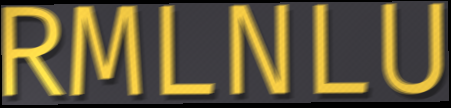
RMLNLU